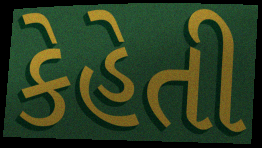
કેહેતી